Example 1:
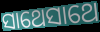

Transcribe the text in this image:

ସାଥେସାଥେ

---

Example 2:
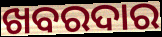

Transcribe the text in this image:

ଖବରଦାର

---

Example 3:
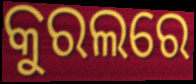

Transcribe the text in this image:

କୁରଲରେ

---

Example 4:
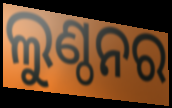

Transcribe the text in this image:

ଲୁଣ୍ଠନର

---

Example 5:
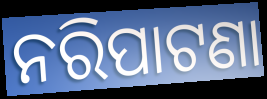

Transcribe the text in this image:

ନରିପାଟଣା